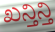
ಖನ್ತಿನ್ತಿ